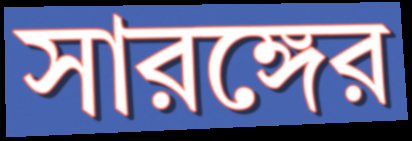
সারঙ্গের